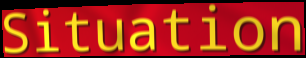
Situation